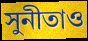
সুনীতাও